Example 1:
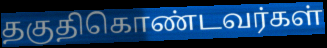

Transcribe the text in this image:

தகுதிகொண்டவர்கள்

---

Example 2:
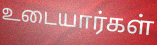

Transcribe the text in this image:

உடையார்கள்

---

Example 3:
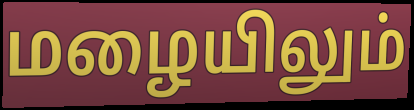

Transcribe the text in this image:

மழையிலும்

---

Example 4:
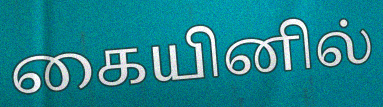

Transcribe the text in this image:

கையினில்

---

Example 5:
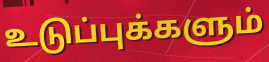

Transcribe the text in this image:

உடுப்புக்களும்